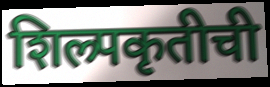
शिल्पकृतीची